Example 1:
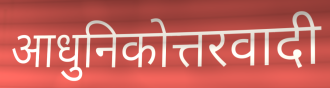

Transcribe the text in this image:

आधुनिकोत्तरवादी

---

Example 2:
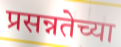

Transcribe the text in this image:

प्रसन्नतेच्या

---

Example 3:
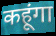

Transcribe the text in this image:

कहूंगा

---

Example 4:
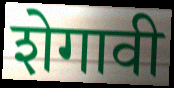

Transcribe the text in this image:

शेगावी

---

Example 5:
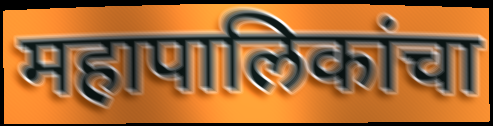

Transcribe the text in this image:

महापालिकांचा